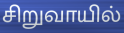
சிறுவாயில்